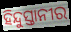
ହିନ୍ଦୁସ୍ତାନୀର